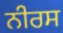
ਨੀਰਸ